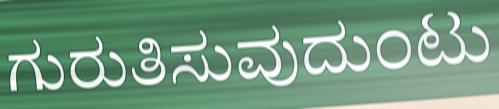
ಗುರುತಿಸುವುದುಂಟು